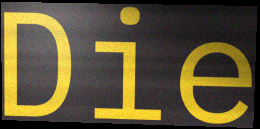
Die